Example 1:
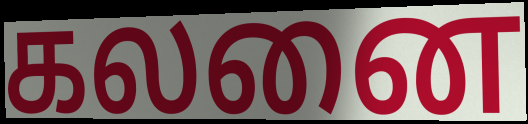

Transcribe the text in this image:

கலனை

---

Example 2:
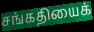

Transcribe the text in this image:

சங்கதியைக்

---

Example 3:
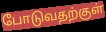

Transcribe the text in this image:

போடுவதற்குள்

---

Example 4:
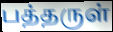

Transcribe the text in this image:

பத்தருள்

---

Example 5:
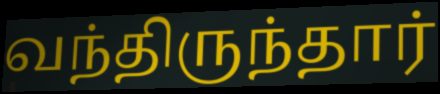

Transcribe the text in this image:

வந்திருந்தார்